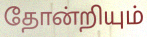
தோன்றியும்